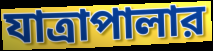
যাত্রাপালার